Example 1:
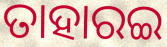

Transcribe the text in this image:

ତାହାରଇ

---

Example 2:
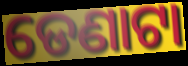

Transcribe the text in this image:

ଡେଣାଟା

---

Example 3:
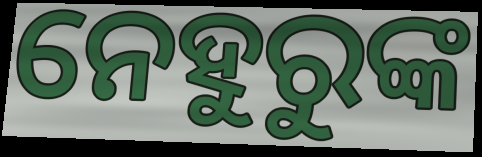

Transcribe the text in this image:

ନେହୁରୁଙ୍କ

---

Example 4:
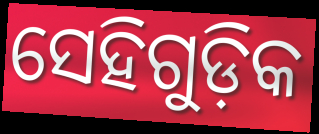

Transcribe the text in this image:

ସେହିଗୁଡ଼ିକ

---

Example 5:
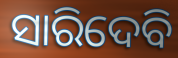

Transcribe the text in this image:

ସାରିଦେବି